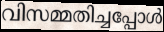
വിസമ്മതിച്ചപ്പോൾ